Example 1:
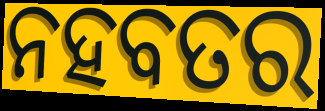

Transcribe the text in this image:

ନହବତର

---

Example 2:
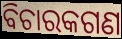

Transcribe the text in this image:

ବିଚାରକଗଣ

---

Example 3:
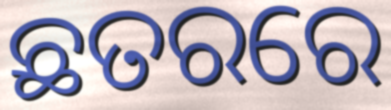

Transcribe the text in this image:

ଛତରରେ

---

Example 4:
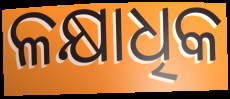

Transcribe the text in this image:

ଳକ୍ଷାଧିକ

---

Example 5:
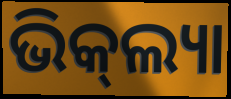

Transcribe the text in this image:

ଭିକ୍‌ଲ୍ୟା